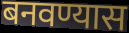
बनवण्यास